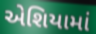
એશિયામાં